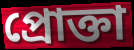
প্রোক্তা